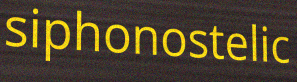
siphonostelic